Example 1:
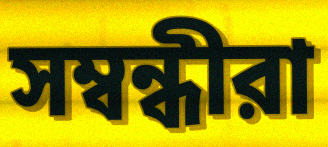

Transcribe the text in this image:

সম্বন্ধীরা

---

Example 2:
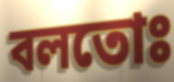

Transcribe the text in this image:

বলতোঃ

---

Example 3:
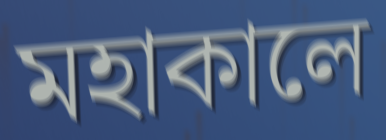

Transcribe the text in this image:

মহাকালে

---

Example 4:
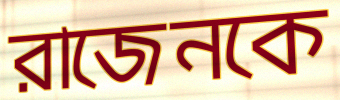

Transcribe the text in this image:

রাজেনকে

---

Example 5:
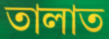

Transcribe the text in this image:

তালাত